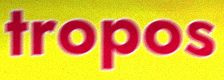
tropos